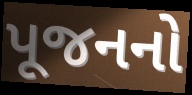
પૂજનનો